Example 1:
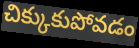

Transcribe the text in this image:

చిక్కుకుపోవడం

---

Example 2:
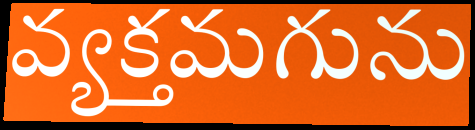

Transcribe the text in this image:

వ్యక్తమగును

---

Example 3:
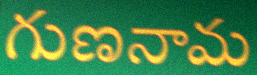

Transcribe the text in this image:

గుణనామ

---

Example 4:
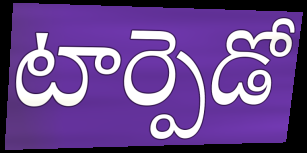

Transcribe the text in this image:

టార్పెడో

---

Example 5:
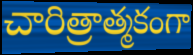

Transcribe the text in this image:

చారిత్రాత్మకంగా